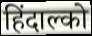
हिंदाल्को